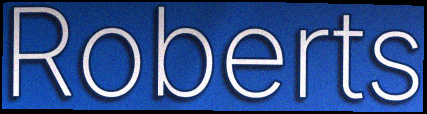
Roberts